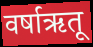
वर्षाऋतू